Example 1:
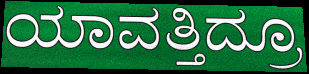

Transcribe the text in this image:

ಯಾವತ್ತಿದ್ರೂ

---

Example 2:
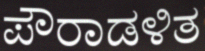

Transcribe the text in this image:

ಪೌರಾಡಳಿತ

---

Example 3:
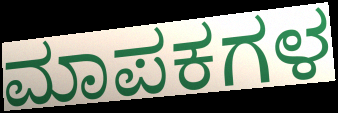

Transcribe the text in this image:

ಮಾಪಕಗಳ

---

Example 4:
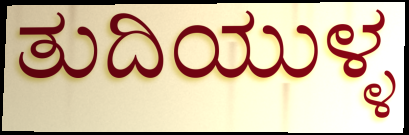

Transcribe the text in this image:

ತುದಿಯುಳ್ಳ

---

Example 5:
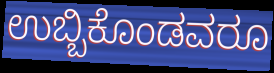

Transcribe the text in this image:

ಉಬ್ಬಿಕೊಂಡವರೂ